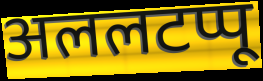
अललटप्पू